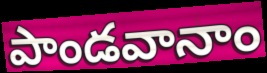
పాండవానాం